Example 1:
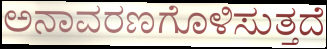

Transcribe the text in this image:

ಅನಾವರಣಗೊಳಿಸುತ್ತದೆ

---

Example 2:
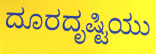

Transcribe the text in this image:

ದೂರದೃಷ್ಟಿಯು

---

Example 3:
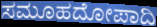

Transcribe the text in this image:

ಸಮೂಹದೋಪಾದಿ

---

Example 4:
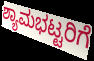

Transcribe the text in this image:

ಶ್ಯಾಮಭಟ್ಟರಿಗೆ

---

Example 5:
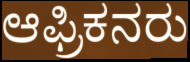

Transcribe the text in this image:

ಆಫ್ರಿಕನರು